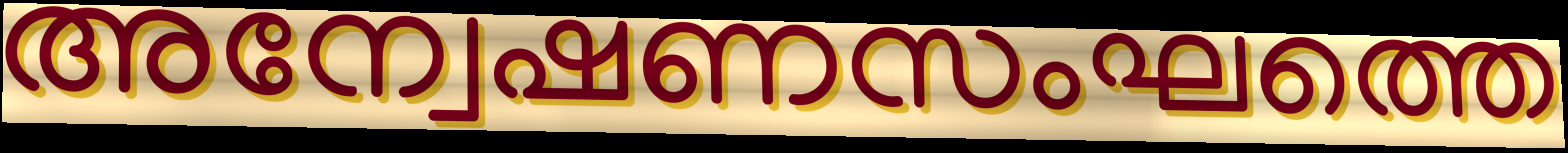
അന്വേഷണസംഘത്തെ